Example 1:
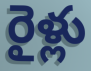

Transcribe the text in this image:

రైళ్లు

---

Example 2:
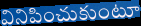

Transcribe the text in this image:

వినిపించుకుంటూ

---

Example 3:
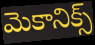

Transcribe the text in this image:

మెకానిక్స్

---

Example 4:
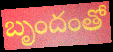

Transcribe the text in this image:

బృందంతో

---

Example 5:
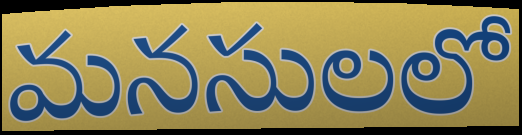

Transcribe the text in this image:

మనసులలో